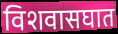
विशवासघात